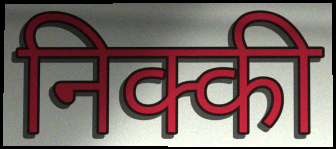
निक्की